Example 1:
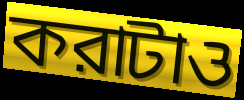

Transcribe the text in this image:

করাটাও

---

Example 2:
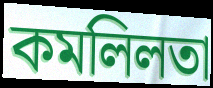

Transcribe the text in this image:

কমলিলতা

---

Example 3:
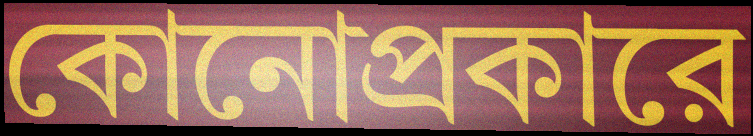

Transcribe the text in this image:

কোনোপ্রকারে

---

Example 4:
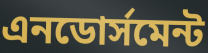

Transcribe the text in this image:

এনডোর্সমেন্ট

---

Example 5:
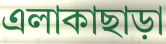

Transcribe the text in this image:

এলাকাছাড়া